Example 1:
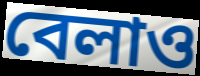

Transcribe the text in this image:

বেলাও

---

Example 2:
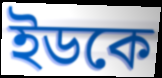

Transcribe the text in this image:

ইডকে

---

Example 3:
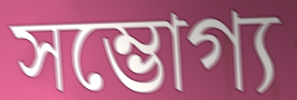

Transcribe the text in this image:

সম্ভোগ্য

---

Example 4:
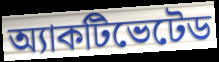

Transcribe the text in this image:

অ্যাকটিভেটেড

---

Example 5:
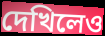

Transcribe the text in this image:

দেখিলেও